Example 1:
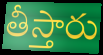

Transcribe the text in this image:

తీస్తారు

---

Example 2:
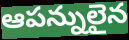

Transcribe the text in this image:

ఆపన్నులైన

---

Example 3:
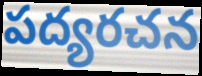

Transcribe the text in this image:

పద్యరచన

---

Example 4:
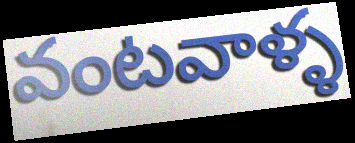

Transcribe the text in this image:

వంటవాళ్ళ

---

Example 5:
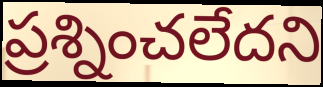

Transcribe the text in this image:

ప్రశ్నించలేదని